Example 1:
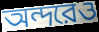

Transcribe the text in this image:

অন্দরেও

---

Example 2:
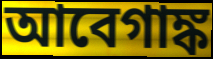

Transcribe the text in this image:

আবেগাঙ্ক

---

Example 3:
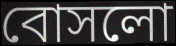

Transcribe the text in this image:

বোসলো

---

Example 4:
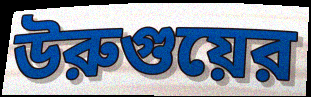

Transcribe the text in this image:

উরুগুয়ের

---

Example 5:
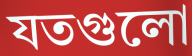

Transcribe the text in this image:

যতগুলো